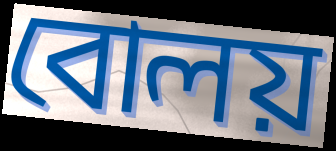
বোলয়